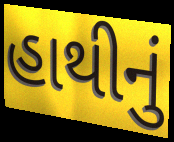
હાથીનું